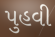
પુહવી